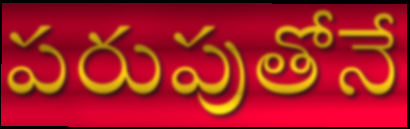
పరుపుతోనే